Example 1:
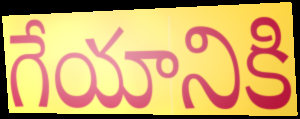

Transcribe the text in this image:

గేయానికి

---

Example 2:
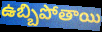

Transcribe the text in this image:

ఉబ్బిపోతాయి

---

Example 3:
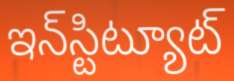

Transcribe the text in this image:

ఇన్‌స్టిట్యూట్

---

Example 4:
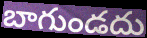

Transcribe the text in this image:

బాగుండదు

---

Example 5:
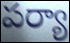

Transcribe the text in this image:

పర్యా